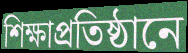
শিক্ষাপ্রতিষ্ঠানে